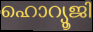
ഹൊറ്യൂജി